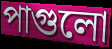
পাগুলো